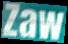
Zaw